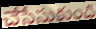
చేసేసుకుంది